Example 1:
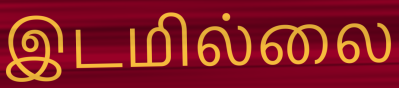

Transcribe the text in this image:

இடமில்லை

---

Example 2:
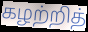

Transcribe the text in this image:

கழற்றித்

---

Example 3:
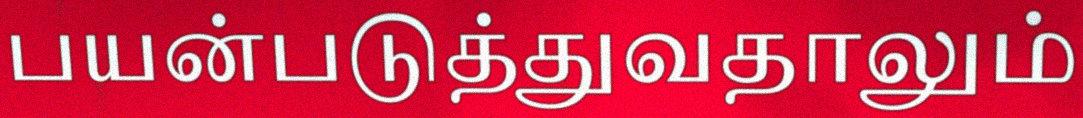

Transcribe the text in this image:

பயன்படுத்துவதாலும்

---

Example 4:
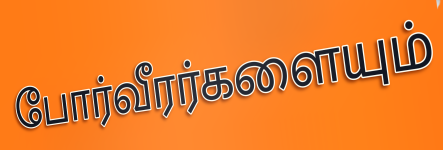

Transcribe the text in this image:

போர்வீரர்களையும்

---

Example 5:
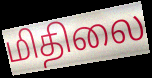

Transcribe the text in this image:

மிதிலை